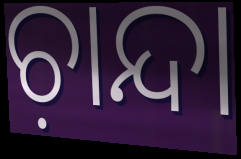
ଚ଼ାନ୍ଦା